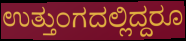
ಉತ್ತುಂಗದಲ್ಲಿದ್ದರೂ